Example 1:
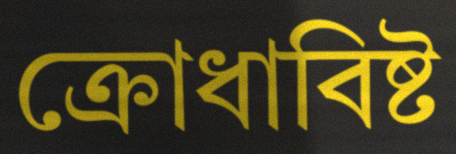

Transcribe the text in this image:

ক্রোধাবিষ্ট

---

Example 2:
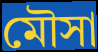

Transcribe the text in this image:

মৌসা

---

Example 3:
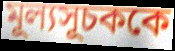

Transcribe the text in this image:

মূল্যসূচককে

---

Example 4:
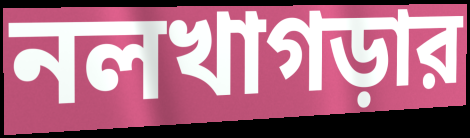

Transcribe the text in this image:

নলখাগড়ার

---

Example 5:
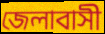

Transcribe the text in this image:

জেলাবাসী